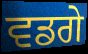
ਵਡਗੇ